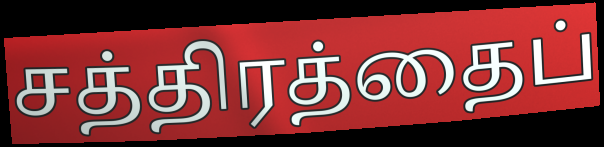
சத்திரத்தைப்